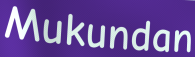
Mukundan